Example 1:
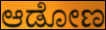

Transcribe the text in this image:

ಆಡೋಣ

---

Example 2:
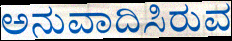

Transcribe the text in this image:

ಅನುವಾದಿಸಿರುವ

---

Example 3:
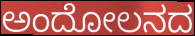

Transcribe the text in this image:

ಅಂದೋಲನದ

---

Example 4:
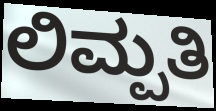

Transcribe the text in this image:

ಲಿಮ್ಪತಿ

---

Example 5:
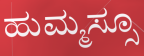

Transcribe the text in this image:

ಹುಮ್ಮಸ್ಸೂ